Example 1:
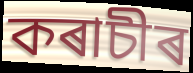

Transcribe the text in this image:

কৰাচীৰ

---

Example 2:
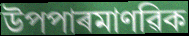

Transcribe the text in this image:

উপপাৰমাণৱিক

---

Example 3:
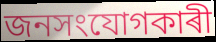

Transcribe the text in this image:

জনসংযোগকাৰী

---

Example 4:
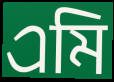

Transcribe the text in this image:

এমি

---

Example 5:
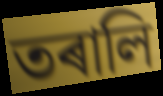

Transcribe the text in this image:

তৰালি